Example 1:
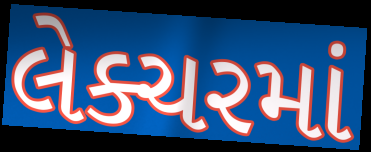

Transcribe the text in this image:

લેક્ચરમાં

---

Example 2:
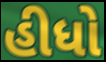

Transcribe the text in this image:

હીધો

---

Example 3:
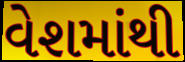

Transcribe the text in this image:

વેશમાંથી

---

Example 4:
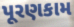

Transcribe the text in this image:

પૂરણકામ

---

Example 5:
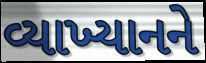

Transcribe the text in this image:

વ્યાખ્યાનને